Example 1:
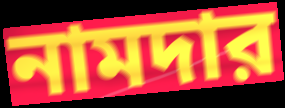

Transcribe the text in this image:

নামদার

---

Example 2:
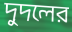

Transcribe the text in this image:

দুদলের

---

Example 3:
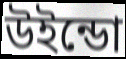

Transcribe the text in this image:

উইন্ডো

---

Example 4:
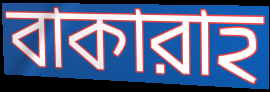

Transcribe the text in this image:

বাকারাহ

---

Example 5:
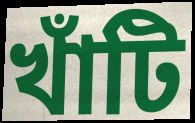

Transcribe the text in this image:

খাঁটি